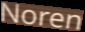
Noren